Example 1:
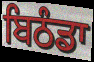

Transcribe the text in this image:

ਬਿਠੰਡਾ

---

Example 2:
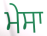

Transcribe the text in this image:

ਮੇਸਾ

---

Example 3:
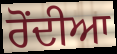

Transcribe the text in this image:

ਰੋਂਦੀਆ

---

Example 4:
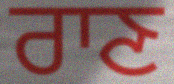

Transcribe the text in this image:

ਰਾਣ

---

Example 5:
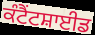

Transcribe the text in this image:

ਕੰਟੈਂਟਸ਼ਾਈਡ